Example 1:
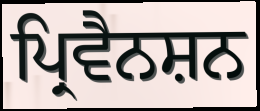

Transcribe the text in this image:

ਪ੍ਰਿਵੈਨਸ਼ਨ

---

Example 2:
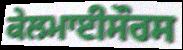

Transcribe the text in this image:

ਕੇਲਮਾਈਸੌਰਸ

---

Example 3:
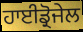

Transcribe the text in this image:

ਹਾਈਡ੍ਰੋਜੇਲ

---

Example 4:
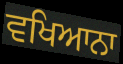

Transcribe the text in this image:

ਵਖਿਆਨਾ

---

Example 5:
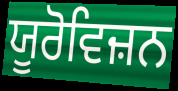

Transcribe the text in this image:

ਯੂਰੋਵਿਜ਼ਨ